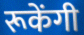
रूकेंगी